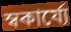
স্বকার্য্যে